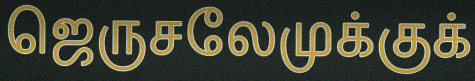
ஜெருசலேமுக்குக்